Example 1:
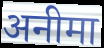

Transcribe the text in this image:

अनीमा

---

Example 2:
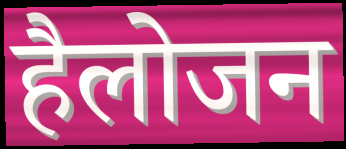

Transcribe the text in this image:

हैलोजन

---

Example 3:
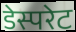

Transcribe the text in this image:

डेस्परेट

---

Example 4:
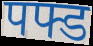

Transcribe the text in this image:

पफ्ड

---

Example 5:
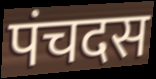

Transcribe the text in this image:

पंचदस